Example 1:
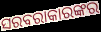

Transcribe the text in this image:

ସରବରାକାରଙ୍କର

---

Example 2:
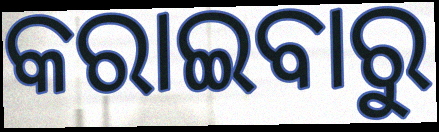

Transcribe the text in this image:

କରାଇବାରୁ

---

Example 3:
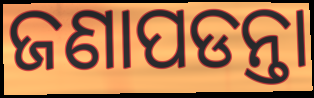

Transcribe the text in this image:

ଜଣାପଡନ୍ତା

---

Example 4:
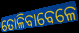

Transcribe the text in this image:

ତୋଳିବାବେଳେ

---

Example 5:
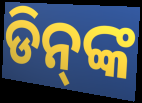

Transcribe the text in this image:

ଡିନ୍‍ଙ୍କ